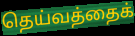
தெய்வத்தைக்